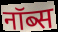
नॉब्स